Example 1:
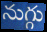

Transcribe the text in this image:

నుగ్గు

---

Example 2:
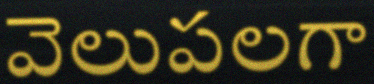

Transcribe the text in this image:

వెలుపలగా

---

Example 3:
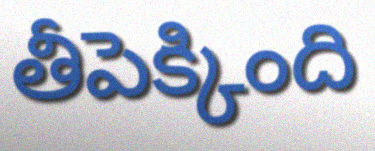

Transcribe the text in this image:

తీపెక్కింది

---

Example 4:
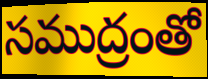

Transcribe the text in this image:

సముద్రంతో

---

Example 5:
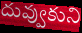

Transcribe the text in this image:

దువ్వుకుని